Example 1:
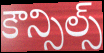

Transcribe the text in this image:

కౌన్సిల్స్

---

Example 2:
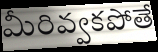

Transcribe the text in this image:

మీరివ్వకపోతే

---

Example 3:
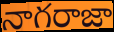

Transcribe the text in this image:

నాగరాజా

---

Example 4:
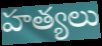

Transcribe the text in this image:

హత్యలు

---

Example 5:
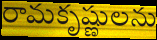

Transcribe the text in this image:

రామకృష్ణులను